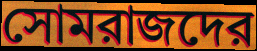
সোমরাজদের